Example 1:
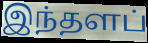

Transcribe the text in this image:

இந்தளப்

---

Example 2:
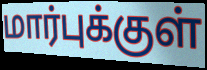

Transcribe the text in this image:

மார்புக்குள்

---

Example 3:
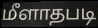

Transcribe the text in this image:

மீளாதபடி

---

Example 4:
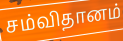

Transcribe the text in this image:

சம்விதானம்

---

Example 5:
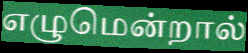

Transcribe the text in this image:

எழுமென்றால்